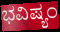
ಭವಿಷ್ಯಂ